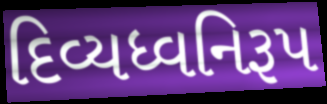
દિવ્યધ્વનિરૂપ